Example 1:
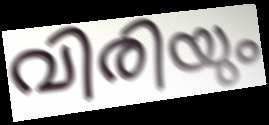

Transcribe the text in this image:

വിരിയും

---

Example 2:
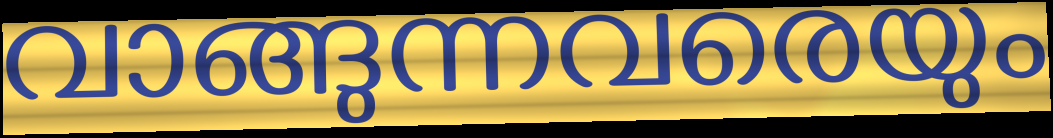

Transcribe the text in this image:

വാങ്ങുന്നവരെയും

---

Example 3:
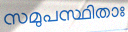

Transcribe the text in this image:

സമുപസ്ഥിതാഃ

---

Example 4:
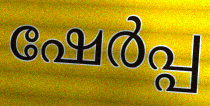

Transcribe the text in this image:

ഷേർപ്പ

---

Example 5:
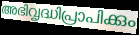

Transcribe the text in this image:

അഭിവൃദ്ധിപ്രാപിക്കും